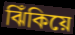
ঝিঁকিয়ে